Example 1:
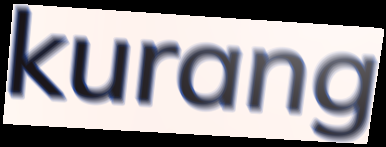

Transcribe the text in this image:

kurang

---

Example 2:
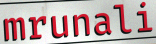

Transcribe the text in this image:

mrunali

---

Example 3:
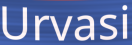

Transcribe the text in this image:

Urvasi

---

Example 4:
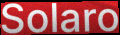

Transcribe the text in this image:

Solaro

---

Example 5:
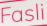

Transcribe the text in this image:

Fasli